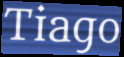
Tiago